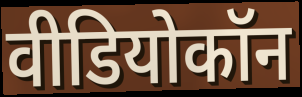
वीडियोकॉन